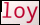
loy